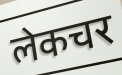
लेकचर